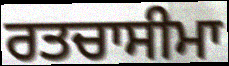
ਰਤਚਾਸੀਮਾ